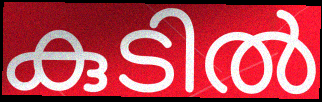
കുടിൽ